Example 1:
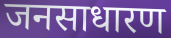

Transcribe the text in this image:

जनसाधारण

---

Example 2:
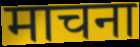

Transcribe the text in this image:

माचना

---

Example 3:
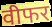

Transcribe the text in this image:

वीफर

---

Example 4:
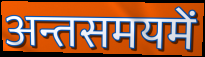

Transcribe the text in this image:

अन्तसमयमें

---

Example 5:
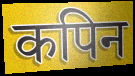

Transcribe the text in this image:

कपिन